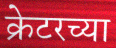
क्रेटरच्या